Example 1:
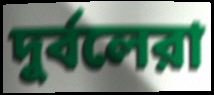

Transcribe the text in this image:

দুর্বলেরা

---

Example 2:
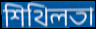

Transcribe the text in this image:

শিথিলতা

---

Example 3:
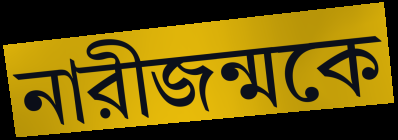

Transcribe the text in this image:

নারীজন্মকে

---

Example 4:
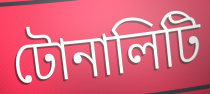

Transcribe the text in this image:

টোনালিটি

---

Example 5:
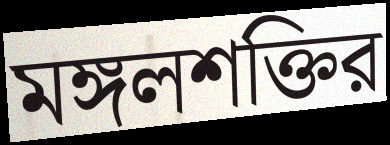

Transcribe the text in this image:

মঙ্গলশক্তির